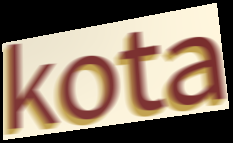
kota